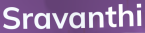
Sravanthi